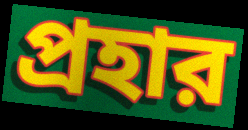
প্রহার